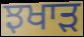
ਝਖਾੜ